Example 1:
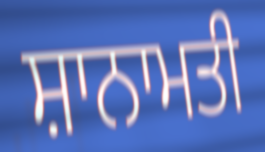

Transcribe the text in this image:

ਸ਼ਾਨਾਮਤੀ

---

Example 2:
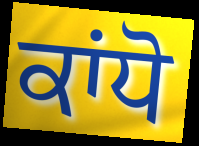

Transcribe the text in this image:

ਕਾਂਧੋ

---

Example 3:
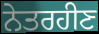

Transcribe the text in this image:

ਨੇਤਰਹੀਣ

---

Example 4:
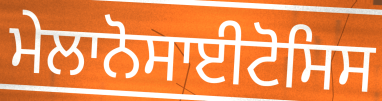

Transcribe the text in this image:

ਮੇਲਾਨੋਸਾਈਟੋਸਿਸ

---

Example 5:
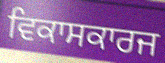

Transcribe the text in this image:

ਵਿਕਾਸਕਾਰਜ